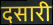
दसारी